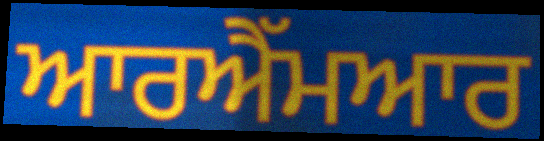
ਆਰਐੱਮਆਰ